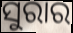
ସୁରାର